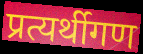
प्रत्यर्थीगण